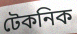
টেকনিক